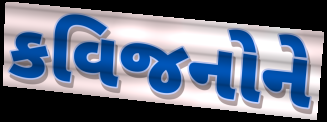
કવિજનોને